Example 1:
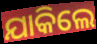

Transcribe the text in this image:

ଯାକିଲେ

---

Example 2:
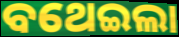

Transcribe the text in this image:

ବଥେଇଲା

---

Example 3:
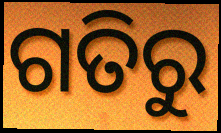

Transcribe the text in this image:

ଗତିରୁ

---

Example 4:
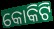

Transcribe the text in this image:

କୋକିଟି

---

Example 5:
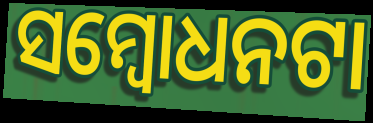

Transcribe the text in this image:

ସମ୍ବୋଧନଟା